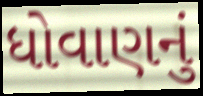
ધોવાણનું